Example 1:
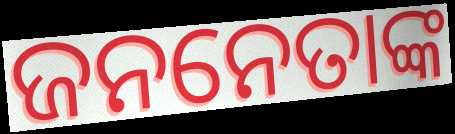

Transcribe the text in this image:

ଜନନେତାଙ୍କ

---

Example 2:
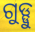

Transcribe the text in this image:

ଗୁଡ୍ଡୁ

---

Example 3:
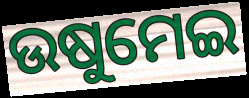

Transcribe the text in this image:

ଉଷୁମେଇ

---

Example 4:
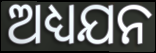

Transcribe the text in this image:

ଅଧ୍ୟଯନ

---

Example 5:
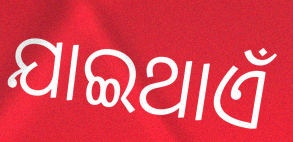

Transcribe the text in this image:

ଯାଇଥାଏଁ